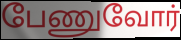
பேணுவோர்